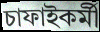
চাফাইকৰ্মী